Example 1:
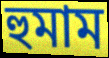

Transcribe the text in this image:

হুমাম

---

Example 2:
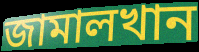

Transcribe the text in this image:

জামালখান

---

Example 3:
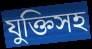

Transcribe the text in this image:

যুক্তিসহ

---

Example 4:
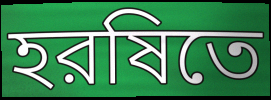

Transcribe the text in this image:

হরষিতে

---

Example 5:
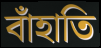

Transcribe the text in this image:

বাঁহাতি